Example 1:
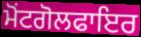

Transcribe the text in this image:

ਮੋਂਟਗੋਲਫਾਇਰ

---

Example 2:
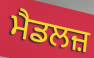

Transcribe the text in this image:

ਮੈਡਲਜ਼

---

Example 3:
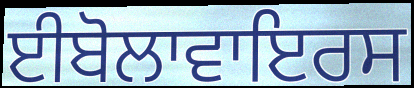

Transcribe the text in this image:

ਈਬੋਲਾਵਾਇਰਸ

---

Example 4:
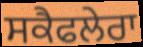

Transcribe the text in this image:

ਸਕੈਫਲੇਰਾ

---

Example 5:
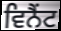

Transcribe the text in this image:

ਵਿਨੈਂਟ